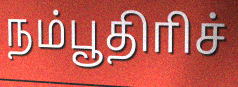
நம்பூதிரிச்